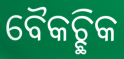
ବୈକଚ୍ଛିକ